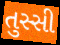
તુસ્સી